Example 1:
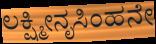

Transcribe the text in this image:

ಲಕ್ಷ್ಮೀನೃಸಿಂಹನೇ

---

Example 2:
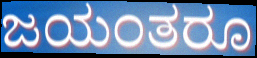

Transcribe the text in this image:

ಜಯಂತರೂ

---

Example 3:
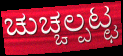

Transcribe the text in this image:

ಚುಚ್ಚಲ್ಪಟ್ಟ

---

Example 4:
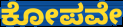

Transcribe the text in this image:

ಕೋಪವೇ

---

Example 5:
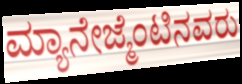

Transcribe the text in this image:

ಮ್ಯಾನೇಜ್ಮೆಂಟಿನವರು